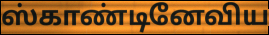
ஸ்காண்டினேவிய